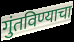
गुंतविण्याचा